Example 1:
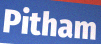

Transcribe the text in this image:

Pitham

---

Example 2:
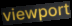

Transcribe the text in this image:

viewport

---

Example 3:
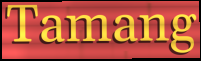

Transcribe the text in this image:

Tamang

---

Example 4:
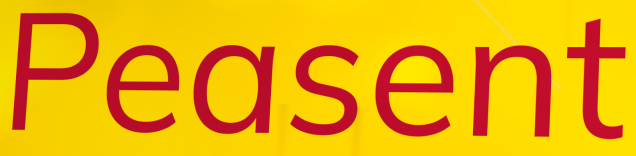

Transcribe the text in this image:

Peasent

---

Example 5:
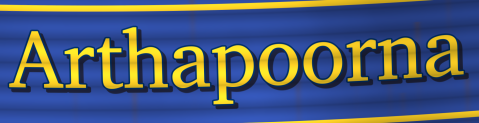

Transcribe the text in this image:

Arthapoorna